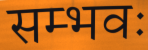
सम्भवः